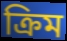
ক্রিম